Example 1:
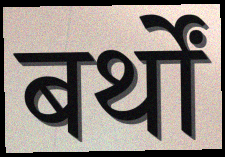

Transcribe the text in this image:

बर्थों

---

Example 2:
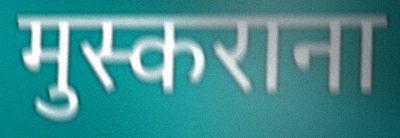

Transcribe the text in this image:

मुस्कराना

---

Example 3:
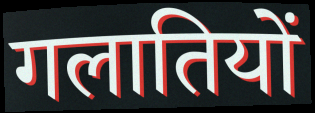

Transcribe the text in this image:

गलातियों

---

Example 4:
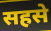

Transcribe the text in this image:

सहसे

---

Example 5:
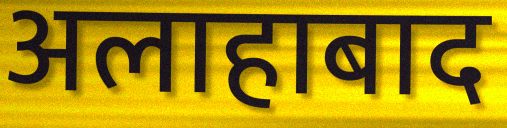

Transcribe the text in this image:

अलाहाबाद